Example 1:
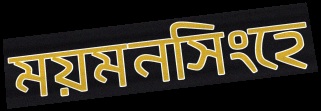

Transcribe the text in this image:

ময়মনসিংহে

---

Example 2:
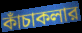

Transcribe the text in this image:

কাঁচাকলার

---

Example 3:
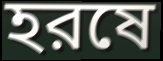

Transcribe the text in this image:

হরষে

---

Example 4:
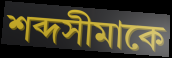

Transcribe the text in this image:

শব্দসীমাকে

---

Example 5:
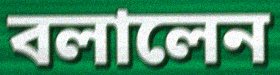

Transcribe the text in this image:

বলালেন